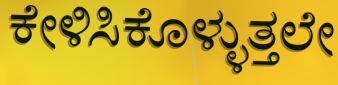
ಕೇಳಿಸಿಕೊಳ್ಳುತ್ತಲೇ